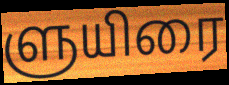
ளுயிரை